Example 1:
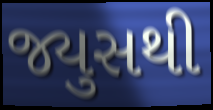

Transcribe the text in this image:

જ્યુસથી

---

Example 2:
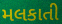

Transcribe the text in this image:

મલકાતી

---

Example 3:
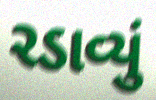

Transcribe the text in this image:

રડાવ્યું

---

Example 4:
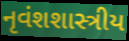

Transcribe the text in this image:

નૃવંશશાસ્ત્રીય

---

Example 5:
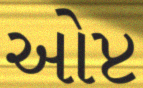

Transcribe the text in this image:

ઓપ્ટ